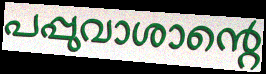
പപ്പുവാശാന്റെ